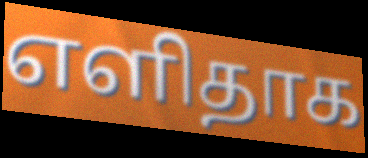
எளிதாக